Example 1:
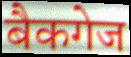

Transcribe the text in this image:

बैकगेज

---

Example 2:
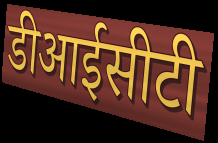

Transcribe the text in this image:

डीआईसीटी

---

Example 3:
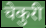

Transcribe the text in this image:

चेकुरी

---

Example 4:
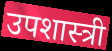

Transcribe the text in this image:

उपशास्त्री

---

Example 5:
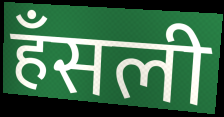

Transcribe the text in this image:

हँसली